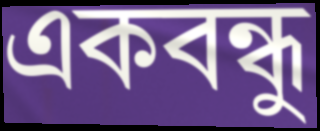
একবন্ধু